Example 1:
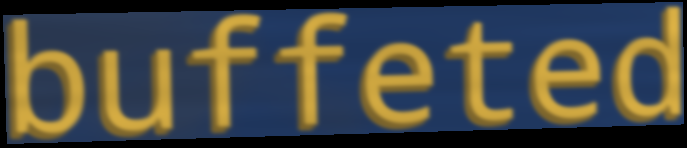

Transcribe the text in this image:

buffeted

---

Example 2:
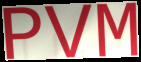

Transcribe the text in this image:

PVM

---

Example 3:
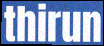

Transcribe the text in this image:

thirun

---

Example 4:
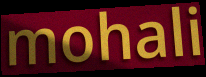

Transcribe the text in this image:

mohali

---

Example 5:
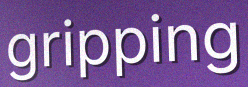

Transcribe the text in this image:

gripping